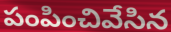
పంపించివేసిన